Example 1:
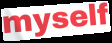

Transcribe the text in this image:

myself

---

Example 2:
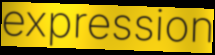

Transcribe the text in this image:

expression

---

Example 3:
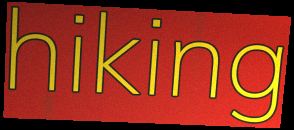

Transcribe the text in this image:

hiking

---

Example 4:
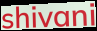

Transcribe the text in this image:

shivani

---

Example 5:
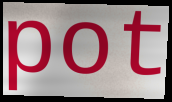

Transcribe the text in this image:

pot